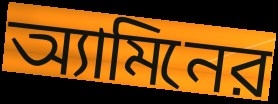
অ্যামিনের